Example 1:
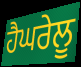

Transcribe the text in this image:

ਹੈਘਰੇਲੂ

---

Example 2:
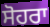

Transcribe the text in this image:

ਸੋਹਰਾ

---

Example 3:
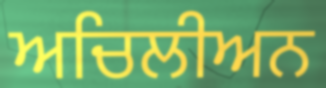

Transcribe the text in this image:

ਅਚਿਲੀਅਨ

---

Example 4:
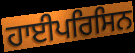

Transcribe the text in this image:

ਹਾਈਪਰਿਸਿਨ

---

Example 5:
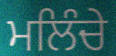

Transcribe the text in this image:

ਮਲਿੰਚੇ